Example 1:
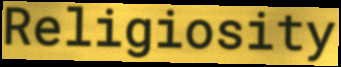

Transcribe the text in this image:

Religiosity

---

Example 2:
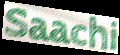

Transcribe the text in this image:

Saachi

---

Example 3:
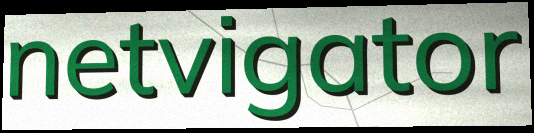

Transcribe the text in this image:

netvigator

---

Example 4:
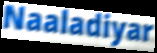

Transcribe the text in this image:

Naaladiyar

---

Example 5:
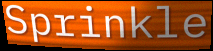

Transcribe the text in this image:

Sprinkle